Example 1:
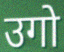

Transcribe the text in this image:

उगो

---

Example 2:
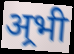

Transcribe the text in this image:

अ्रभी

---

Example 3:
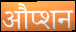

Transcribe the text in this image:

औप्शन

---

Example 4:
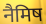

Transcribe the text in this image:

नैमिष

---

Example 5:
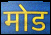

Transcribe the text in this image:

मोड